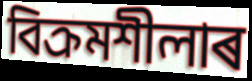
বিক্ৰমশীলাৰ